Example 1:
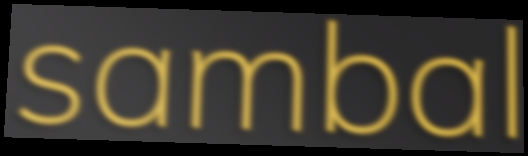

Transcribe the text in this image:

sambal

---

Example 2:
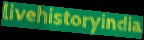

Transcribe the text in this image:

livehistoryindia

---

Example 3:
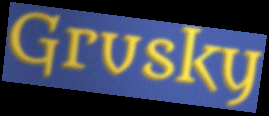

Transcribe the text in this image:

Grusky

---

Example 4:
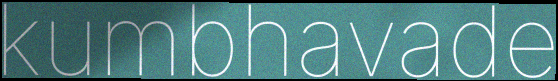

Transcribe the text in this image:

kumbhavade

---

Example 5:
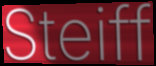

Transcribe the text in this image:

Steiff